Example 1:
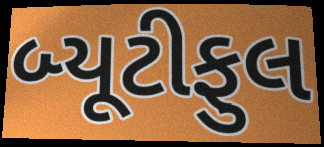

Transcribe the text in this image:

બ્યૂટીફુલ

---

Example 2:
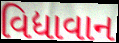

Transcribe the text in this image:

વિદ્યાવાન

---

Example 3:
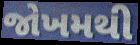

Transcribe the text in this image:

જોખમથી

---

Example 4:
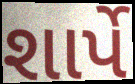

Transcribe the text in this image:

શાર્પે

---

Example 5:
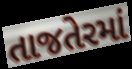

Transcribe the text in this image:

તાજતેરમાં